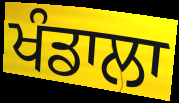
ਖੰਡਾਲਾ